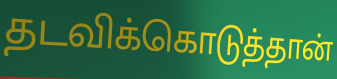
தடவிக்கொடுத்தான்